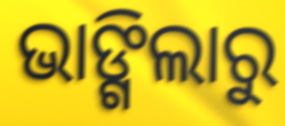
ଭାଙ୍ଗିଲାରୁ